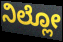
ನಿಲ್ಲೋ